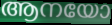
ആനയോ